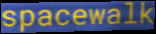
spacewalk